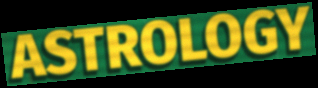
ASTROLOGY